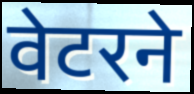
वेटरने